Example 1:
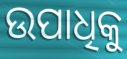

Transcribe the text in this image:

ଉପାଧିକୁ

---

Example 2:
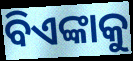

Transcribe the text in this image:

ବିଏଙ୍କାକୁ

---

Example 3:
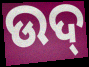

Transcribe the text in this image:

ଉଦ୍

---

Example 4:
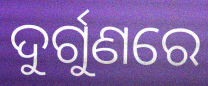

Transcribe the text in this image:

ଦୁର୍ଗୁଣରେ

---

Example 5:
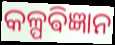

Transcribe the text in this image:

କଳ୍ପଵିଜ୍ଞାନ